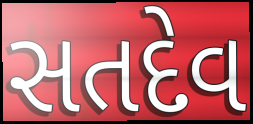
સતદેવ